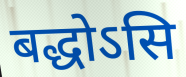
बद्धोऽसि